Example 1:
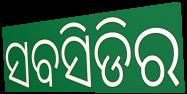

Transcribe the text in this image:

ସବସିଡିର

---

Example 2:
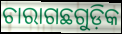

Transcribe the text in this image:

ଚାରାଗଛଗୁଡ଼ିକ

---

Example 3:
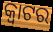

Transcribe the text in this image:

କ୍ୱାଟର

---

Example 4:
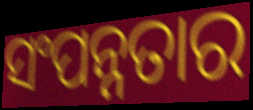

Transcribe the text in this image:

ସଂପନ୍ନତାର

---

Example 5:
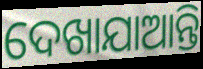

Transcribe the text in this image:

ଦେଖାଯାଆନ୍ତି